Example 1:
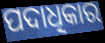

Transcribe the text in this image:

ପଦାଧିକାର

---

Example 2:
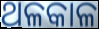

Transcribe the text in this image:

ଥଳକାଳ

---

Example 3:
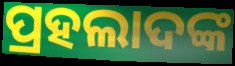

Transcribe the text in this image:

ପ୍ରହଲାଦଙ୍କ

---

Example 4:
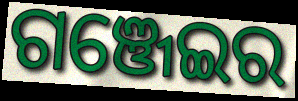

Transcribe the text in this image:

ଗଞ୍ଜେଇର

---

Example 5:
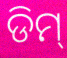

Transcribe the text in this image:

ଡିମ୍